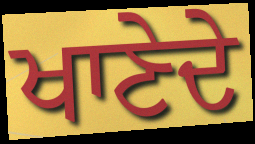
ਖਾਣੇਦੇ